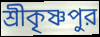
শ্রীকৃষ্ণপুর